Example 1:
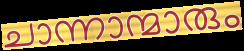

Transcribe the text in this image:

ചാന്നാന്മാരും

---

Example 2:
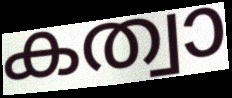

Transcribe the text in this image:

കത്വാ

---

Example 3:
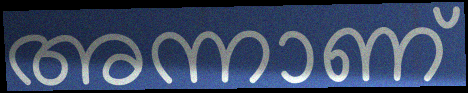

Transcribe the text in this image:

അന്നാണ്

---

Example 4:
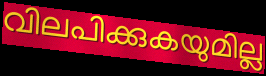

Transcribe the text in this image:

വിലപിക്കുകയുമില്ല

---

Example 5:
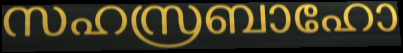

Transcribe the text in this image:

സഹസ്രബാഹോ